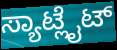
ಸ್ಯಾಟ್ಲೈಟ್